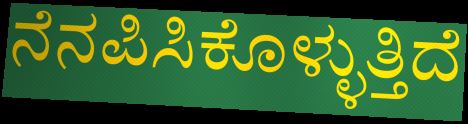
ನೆನಪಿಸಿಕೊಳ್ಳುತ್ತಿದೆ